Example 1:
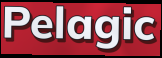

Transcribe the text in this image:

Pelagic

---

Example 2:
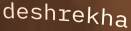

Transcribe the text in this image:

deshrekha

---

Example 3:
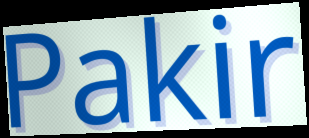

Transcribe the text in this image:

Pakir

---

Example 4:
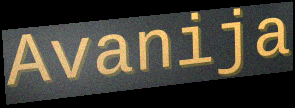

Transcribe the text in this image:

Avanija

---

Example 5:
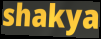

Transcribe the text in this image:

shakya